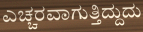
ಎಚ್ಚರವಾಗುತ್ತಿದ್ದುದು